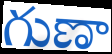
గుణా